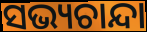
ସଭ୍ୟଚାନ୍ଦା